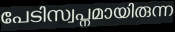
പേടിസ്വപ്നമായിരുന്ന